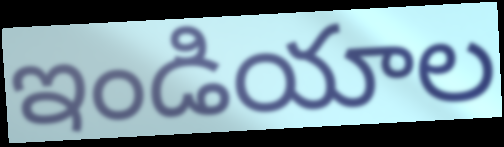
ఇండియాల